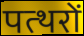
पत्‍थरों